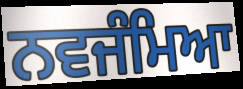
ਨਵਜੰਮਿਆ